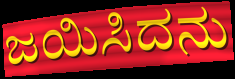
ಜಯಿಸಿದನು